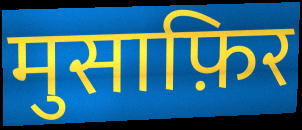
मुसाफ़िर